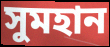
সুমহান